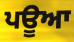
ਪਊਆ